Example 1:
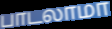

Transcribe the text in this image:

பாடலாமா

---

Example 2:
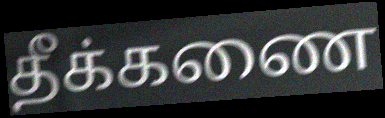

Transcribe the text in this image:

தீக்கணை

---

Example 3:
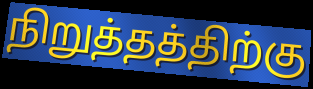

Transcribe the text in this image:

நிறுத்தத்திற்கு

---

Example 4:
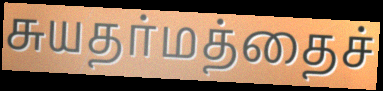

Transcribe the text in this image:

சுயதர்மத்தைச்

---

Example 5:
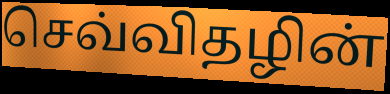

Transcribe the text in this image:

செவ்விதழின்